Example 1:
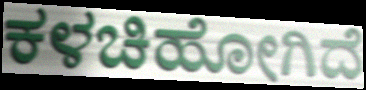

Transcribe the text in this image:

ಕಳಚಿಹೋಗಿದೆ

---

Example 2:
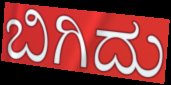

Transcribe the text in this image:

ಬಿಗಿದು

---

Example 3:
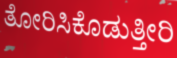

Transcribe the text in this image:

ತೋರಿಸಿಕೊಡುತ್ತೀರಿ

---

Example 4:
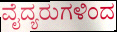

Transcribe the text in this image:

ವೈದ್ಯರುಗಳಿಂದ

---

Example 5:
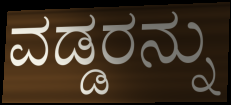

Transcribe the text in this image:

ವಡ್ಡರನ್ನು